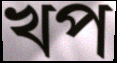
খপ